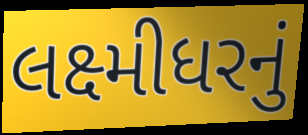
લક્ષ્મીધરનું